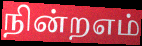
நின்றஎம்